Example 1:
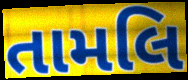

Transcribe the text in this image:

તામલિ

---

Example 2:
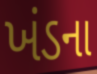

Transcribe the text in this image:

ખંડના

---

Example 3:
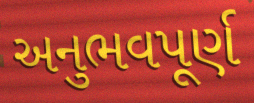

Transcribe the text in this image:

અનુભવપૂર્ણ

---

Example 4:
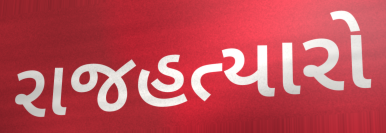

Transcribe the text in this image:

રાજહત્યારો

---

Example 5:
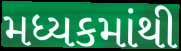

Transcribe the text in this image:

મધ્યકમાંથી